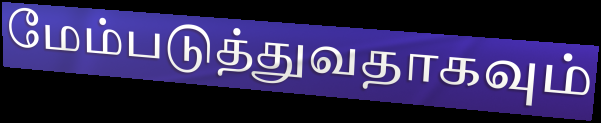
மேம்படுத்துவதாகவும்